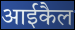
आईकैल